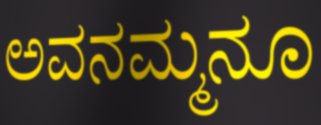
ಅವನಮ್ಮನೂ